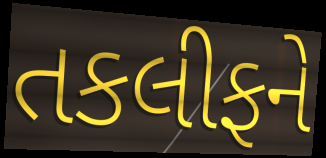
તકલીફને